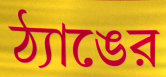
ঠ্যাঙের